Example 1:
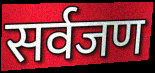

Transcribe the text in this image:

सर्वजण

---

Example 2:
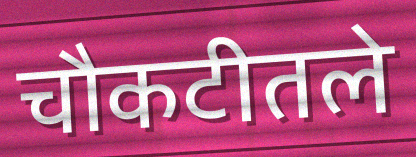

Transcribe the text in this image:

चौकटीतले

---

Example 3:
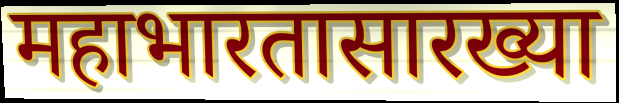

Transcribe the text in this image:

महाभारतासारख्या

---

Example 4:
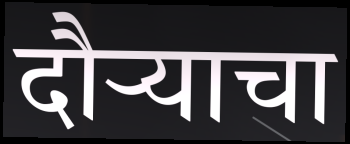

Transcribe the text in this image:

दौऱ्याचा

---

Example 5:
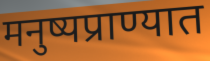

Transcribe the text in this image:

मनुष्यप्राण्यात